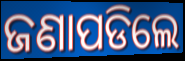
ଜଣାପଡିଲେ